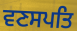
ਵਣਸਪਤਿ